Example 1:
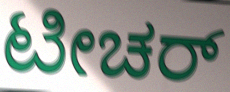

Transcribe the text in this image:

ಟೀಚರ್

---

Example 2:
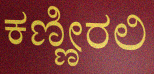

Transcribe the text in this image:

ಕಣ್ಣೀರಲಿ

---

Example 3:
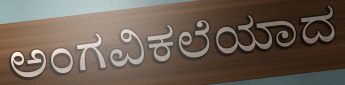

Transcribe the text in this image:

ಅಂಗವಿಕಲೆಯಾದ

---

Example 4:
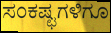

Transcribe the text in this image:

ಸಂಕಷ್ಟಗಳಿಗೂ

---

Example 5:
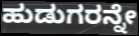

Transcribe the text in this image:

ಹುಡುಗರನ್ನೇ